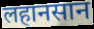
लहानसान